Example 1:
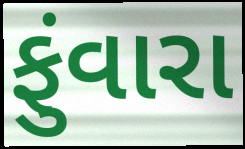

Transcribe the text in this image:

ફુંવારા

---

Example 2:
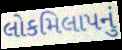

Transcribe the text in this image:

લોકમિલાપનું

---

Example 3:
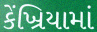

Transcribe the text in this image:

કેંખ્રિયામાં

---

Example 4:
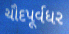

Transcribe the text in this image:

ચૌદપૂર્વધર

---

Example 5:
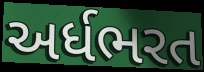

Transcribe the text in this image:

અર્ધભરત